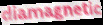
diamagnetic